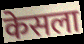
केसला